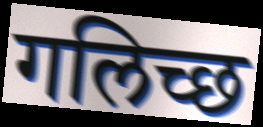
गलिच्छ